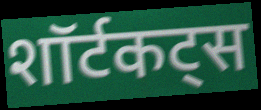
शॉर्टकट्स